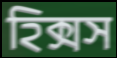
হিক্সস